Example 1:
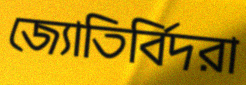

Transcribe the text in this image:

জ্যোতির্বিদরা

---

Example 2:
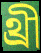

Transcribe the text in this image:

থ্রী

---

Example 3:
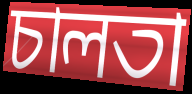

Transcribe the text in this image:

চালতা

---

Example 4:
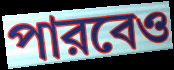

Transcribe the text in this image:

পারবেও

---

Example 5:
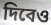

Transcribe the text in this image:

দিবেও